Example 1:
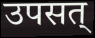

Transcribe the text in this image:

उपसत्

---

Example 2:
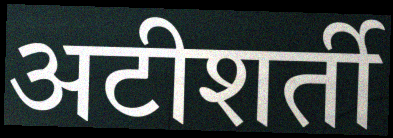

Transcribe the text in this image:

अटीशर्ती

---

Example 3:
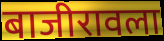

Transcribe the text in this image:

बाजीरावला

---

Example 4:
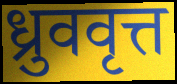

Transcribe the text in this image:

ध्रुववृत्त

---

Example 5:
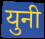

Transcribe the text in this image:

युनी